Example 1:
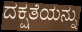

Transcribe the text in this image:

ದಕ್ಷತೆಯನ್ನು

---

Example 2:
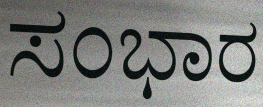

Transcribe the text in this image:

ಸಂಭಾರ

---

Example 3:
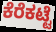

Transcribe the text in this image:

ಕೆರೆಕಟ್ಟೆ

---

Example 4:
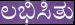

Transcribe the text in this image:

ಲಭಿಸಿತು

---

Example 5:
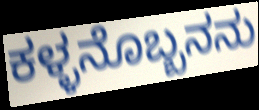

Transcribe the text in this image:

ಕಳ್ಳನೊಬ್ಬನನು